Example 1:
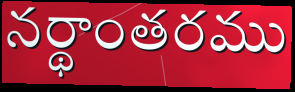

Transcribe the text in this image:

నర్థాంతరము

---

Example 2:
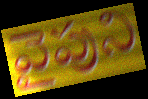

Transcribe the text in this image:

వైపుని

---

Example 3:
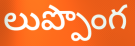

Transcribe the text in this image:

లుప్పొంగ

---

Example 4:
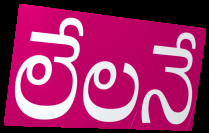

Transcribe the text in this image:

లేలనే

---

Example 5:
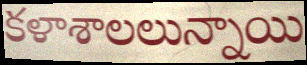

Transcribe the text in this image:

కళాశాలలున్నాయి